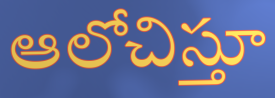
ఆలోచిస్తూ